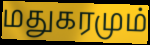
மதுகரமும்